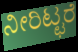
ನೀರಿಟ್ಟರೆ